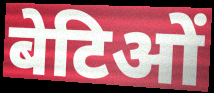
बेटिओं